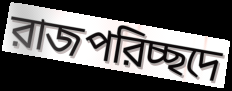
রাজপরিচ্ছদে